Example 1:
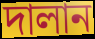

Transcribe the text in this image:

দালান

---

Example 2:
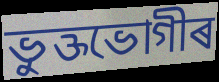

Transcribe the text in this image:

ভুক্তভোগীৰ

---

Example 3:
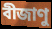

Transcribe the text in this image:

বীজাণু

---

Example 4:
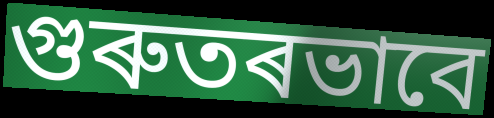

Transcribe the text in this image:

গুৰুতৰভাবে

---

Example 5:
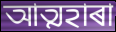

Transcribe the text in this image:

আত্মহাৰা